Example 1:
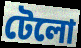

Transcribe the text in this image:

টেলো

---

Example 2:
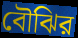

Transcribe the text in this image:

বৌঝির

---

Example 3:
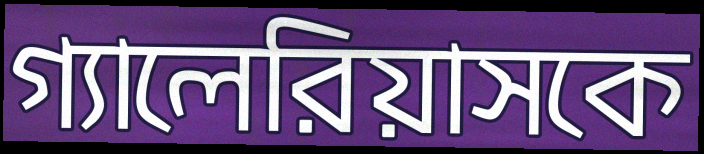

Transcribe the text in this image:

গ্যালেরিয়াসকে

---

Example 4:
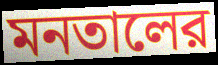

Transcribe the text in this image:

মনতালের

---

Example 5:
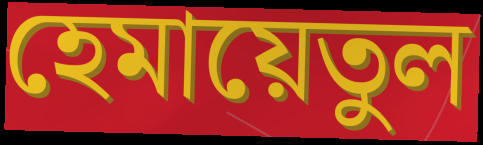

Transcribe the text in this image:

হেমায়েতুল